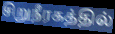
சிறுநீரகத்தில்